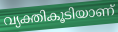
വ്യക്തികൂടിയാണ്